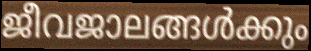
ജീവജാലങ്ങൾക്കും